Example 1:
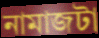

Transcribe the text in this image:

নামাজটা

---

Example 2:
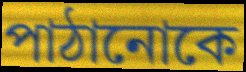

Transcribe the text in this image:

পাঠানোকে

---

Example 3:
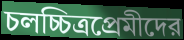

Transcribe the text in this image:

চলচ্চিত্রপ্রেমীদের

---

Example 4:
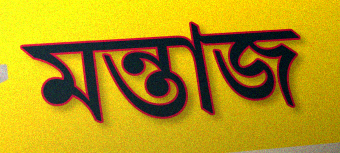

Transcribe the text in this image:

মন্তাজ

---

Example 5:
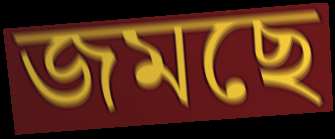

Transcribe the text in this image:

জমছে